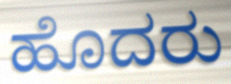
ಹೊದರು